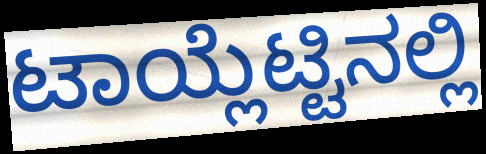
ಟಾಯ್ಲೆಟ್ಟಿನಲ್ಲಿ